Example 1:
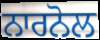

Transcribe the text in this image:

ਨਾਰਨੋਲ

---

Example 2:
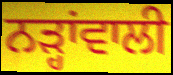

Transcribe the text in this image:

ਨੜ੍ਹਾਂਵਾਲੀ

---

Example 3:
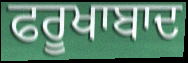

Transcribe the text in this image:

ਫਰੂਖਾਬਾਦ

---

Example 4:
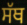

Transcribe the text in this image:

ਸੱਥ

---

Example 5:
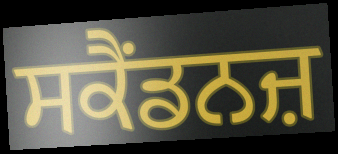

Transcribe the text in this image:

ਸਕੈਂਡਨਜ਼